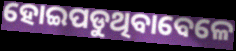
ହୋଇପଡୁଥିବାବେଳେ